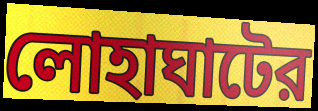
লোহাঘাটের